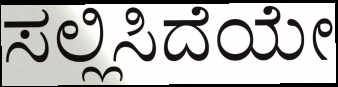
ಸಲ್ಲಿಸಿದೆಯೇ